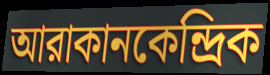
আরাকানকেন্দ্রিক